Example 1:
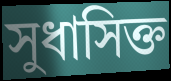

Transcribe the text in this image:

সুধাসিক্ত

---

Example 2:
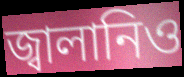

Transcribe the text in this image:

জ্বালানিও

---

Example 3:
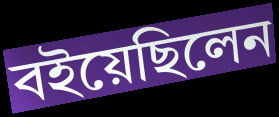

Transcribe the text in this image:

বইয়েছিলেন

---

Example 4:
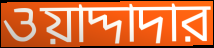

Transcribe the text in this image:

ওয়াদ্দাদার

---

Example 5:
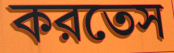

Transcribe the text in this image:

করতেস